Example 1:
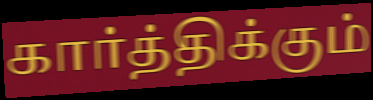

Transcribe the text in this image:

கார்த்திக்கும்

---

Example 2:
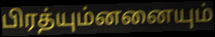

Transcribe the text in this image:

பிரத்யும்னனையும்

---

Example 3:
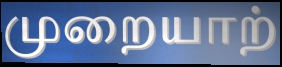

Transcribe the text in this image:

முறையாற்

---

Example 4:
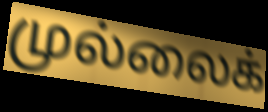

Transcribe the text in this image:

முல்லைக்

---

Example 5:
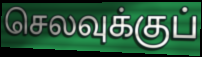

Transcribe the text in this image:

செலவுக்குப்